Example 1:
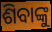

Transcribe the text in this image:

ଶିବାଙ୍କୁ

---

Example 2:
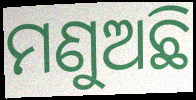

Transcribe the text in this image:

ମଣୁଅଛି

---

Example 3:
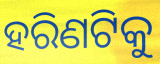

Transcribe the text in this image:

ହରିଣଟିକୁ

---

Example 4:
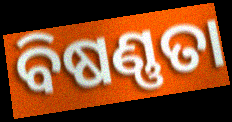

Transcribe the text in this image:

ବିଷଣ୍ଣତା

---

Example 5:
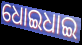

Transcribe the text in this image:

ଧୋଇଧାଇ